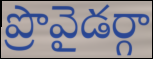
ప్రొవైడర్గా